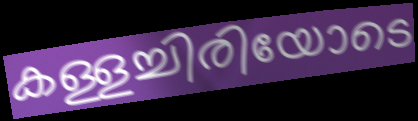
കള്ളച്ചിരിയോടെ